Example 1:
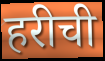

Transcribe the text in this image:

हरीची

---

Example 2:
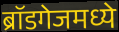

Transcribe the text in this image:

ब्रॉडगेजमध्ये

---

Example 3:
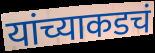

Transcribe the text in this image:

यांच्याकडचं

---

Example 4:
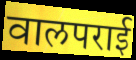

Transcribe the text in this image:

वालपराई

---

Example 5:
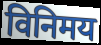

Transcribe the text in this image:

विनिमय